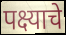
पक्ष्याचे